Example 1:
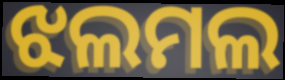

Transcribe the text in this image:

ଝଲମଲ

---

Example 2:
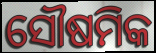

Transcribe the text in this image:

ସୌଷମିକ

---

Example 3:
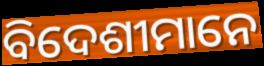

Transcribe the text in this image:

ବିଦେଶୀମାନେ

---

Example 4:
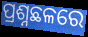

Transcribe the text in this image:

ପ୍ରଶ୍ନଛଳରେ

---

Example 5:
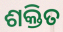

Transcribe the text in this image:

ଶକ୍ତିତ